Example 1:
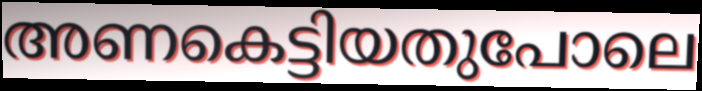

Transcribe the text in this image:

അണകെട്ടിയതുപോലെ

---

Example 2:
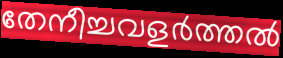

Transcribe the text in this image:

തേനീച്ചവളർത്തൽ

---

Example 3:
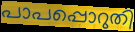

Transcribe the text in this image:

പാപപ്പൊറുതി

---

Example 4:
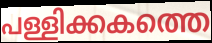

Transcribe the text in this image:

പള്ളിക്കകത്തെ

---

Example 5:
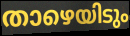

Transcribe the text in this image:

താഴെയിടും